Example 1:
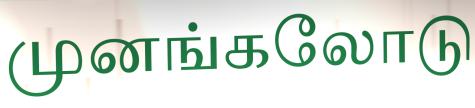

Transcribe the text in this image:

முனங்கலோடு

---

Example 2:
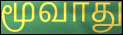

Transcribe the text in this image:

மூவாது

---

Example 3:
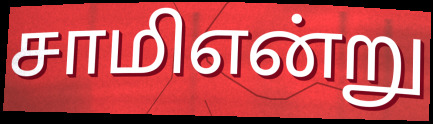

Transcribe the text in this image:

சாமிஎன்று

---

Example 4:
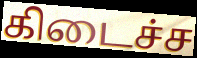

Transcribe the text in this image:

கிடைச்ச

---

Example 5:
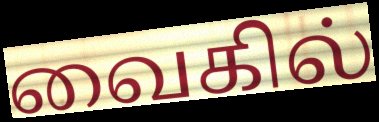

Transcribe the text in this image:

வைகில்